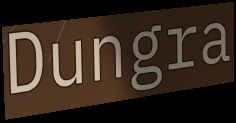
Dungra